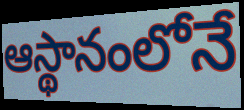
ఆస్థానంలోనే